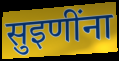
सुइणींना